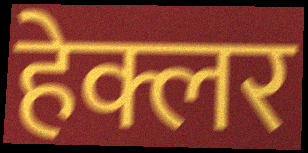
हेक्लर